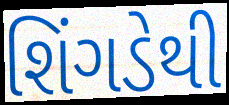
શિંગડેથી